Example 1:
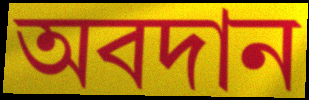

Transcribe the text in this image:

অবদান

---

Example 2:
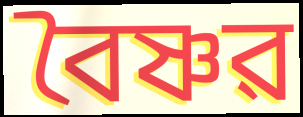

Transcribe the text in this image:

বৈষ্ণৱ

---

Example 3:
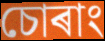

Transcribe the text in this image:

চোৰাং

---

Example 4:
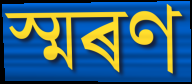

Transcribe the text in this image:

স্মৰণ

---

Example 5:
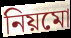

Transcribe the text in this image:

নিয়মো